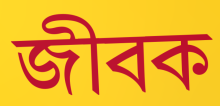
জীবক